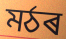
মঠৰ